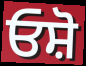
ਓਸ਼ੋ